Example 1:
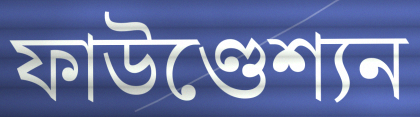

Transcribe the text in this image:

ফাউণ্ডেশ্যন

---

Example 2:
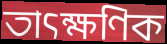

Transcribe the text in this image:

তাৎক্ষণিক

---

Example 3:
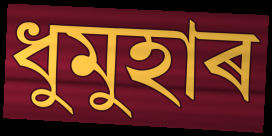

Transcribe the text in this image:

ধুমুহাৰ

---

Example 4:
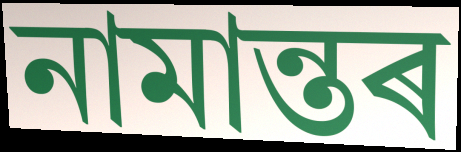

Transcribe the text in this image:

নামান্তৰ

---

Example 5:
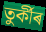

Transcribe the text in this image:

তুৰ্কীৰ